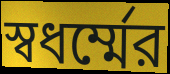
স্বধর্ম্মের